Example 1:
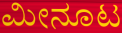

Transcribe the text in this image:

ಮೀನೂಟ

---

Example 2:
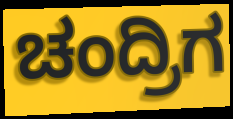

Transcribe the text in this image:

ಚಂದ್ರಿಗ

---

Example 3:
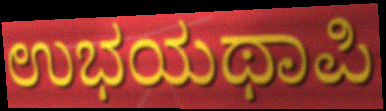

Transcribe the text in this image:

ಉಭಯಥಾಪಿ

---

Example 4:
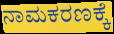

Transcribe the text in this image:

ನಾಮಕರಣಕ್ಕೆ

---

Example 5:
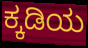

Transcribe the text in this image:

ಕ್ಕಡಿಯ